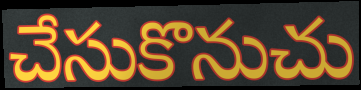
చేసుకొనుచు